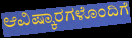
ಆವಿಷ್ಕಾರಗಳೊಂದಿಗೆ